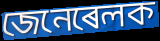
জেনেৰেলক